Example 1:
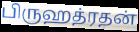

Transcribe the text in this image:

பிருஹத்ரதன்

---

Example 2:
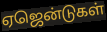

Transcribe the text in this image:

ஏஜென்டுகள்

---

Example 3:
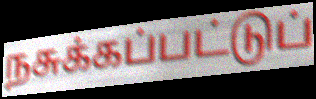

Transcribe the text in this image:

நசுக்கப்பட்டுப்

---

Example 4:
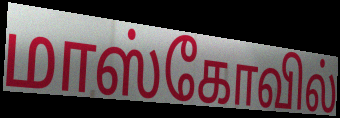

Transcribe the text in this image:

மாஸ்கோவில்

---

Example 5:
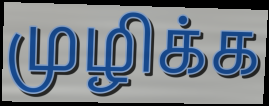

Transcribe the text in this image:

முழிக்க